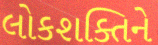
લોકશક્તિને